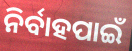
ନିର୍ବାହପାଇଁ